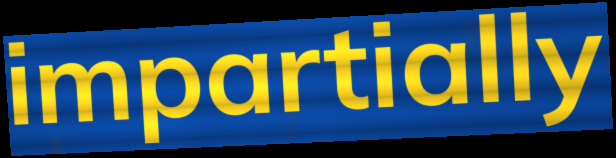
impartially